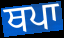
ਥਪਾ